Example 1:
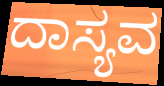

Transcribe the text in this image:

ದಾಸ್ಯವ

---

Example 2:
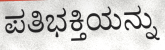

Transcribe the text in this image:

ಪತಿಭಕ್ತಿಯನ್ನು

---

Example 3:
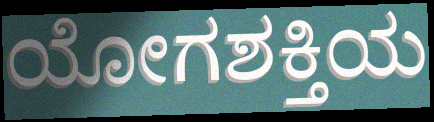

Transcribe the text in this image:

ಯೋಗಶಕ್ತಿಯ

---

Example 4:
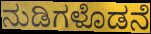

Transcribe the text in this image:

ನುಡಿಗಳೊಡನೆ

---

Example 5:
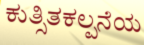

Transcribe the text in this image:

ಕುತ್ಸಿತಕಲ್ಪನೆಯ